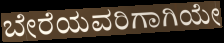
ಬೇರೆಯವರಿಗಾಗಿಯೇ